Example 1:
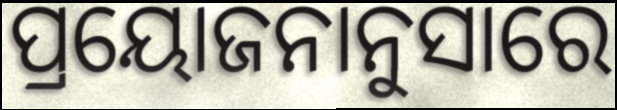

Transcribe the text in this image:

ପ୍ରୟୋଜନାନୁସାରେ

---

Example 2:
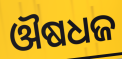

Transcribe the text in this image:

ଔଷଧଜ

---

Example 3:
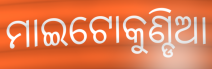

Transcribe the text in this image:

ମାଇଟୋକୁଣ୍ଡିଆ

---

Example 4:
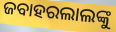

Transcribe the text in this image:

ଜବାହରଲାଲଙ୍କୁ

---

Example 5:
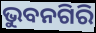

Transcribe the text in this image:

ଭୁବନଗିରି